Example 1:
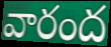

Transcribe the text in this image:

వారంద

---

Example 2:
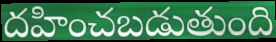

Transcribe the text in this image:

దహించబడుతుంది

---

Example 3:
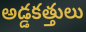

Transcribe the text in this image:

అడ్డకత్తులు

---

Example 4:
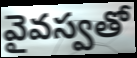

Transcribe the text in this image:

వైవస్వతో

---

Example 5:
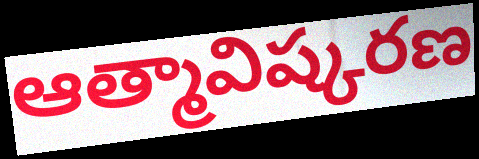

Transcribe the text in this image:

ఆత్మావిష్కరణ